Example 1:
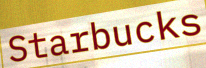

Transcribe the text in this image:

Starbucks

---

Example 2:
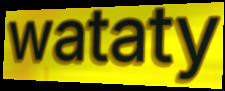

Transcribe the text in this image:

wataty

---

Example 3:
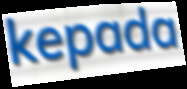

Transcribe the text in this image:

kepada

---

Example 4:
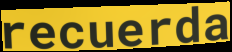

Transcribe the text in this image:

recuerda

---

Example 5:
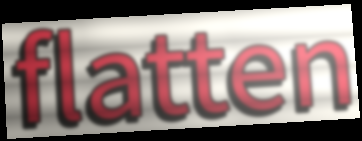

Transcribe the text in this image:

flatten